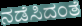
ನಡೆಸಿದಂತೆ